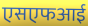
एसएफआई